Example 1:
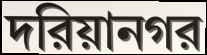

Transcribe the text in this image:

দরিয়ানগর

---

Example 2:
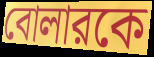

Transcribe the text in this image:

বোলারকে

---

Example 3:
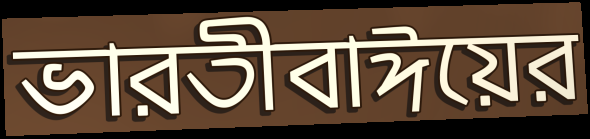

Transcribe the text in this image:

ভারতীবাঈয়ের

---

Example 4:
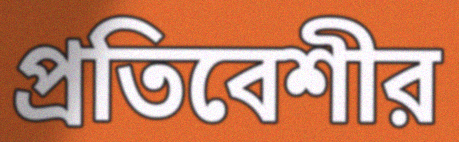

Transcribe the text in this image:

প্রতিবেশীর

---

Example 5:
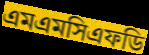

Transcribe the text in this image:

এমএমসিএফডি